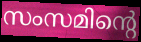
സംസമിന്റെ